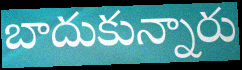
బాదుకున్నారు